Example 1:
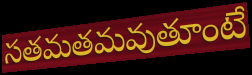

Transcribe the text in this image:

సతమతమవుతూంటే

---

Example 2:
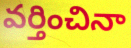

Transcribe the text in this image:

వర్తించినా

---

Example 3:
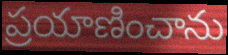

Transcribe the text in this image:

ప్రయాణించాను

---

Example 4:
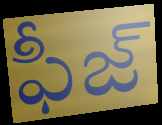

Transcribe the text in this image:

ఫీజ్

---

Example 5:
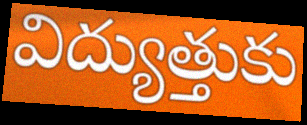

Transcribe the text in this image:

విద్యుత్తుకు